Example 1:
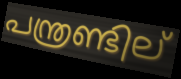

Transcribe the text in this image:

പന്ത്രണ്ടില്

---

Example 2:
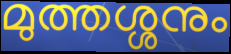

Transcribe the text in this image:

മുത്തശ്ശനും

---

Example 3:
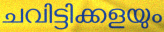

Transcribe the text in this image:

ചവിട്ടിക്കളയും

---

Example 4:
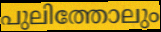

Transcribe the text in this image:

പുലിത്തോലും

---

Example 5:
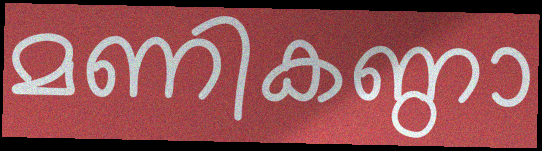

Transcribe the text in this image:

മണികണ്ഠാ